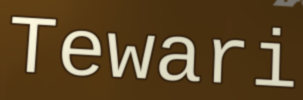
Tewari